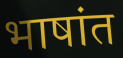
भाषांत